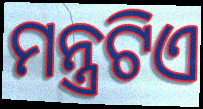
ମନ୍ତ୍ରଟିଏ